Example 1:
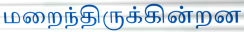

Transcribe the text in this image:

மறைந்திருக்கின்றன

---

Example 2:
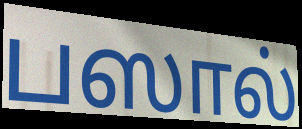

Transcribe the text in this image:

பஸால்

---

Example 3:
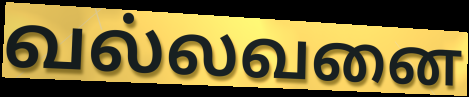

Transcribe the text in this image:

வல்லவனை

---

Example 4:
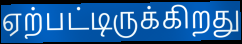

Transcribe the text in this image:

ஏற்பட்டிருக்கிறது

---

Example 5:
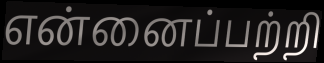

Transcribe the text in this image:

என்னைப்பற்றி